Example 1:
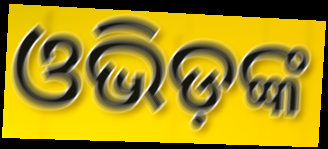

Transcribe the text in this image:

ଓଭିଡ଼ଙ୍କ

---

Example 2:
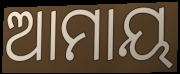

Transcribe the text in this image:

ଆମାୟ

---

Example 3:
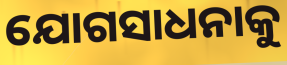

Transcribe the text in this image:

ଯୋଗସାଧନାକୁ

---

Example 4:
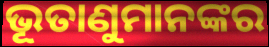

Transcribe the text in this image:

ଭୂତାଣୁମାନଙ୍କର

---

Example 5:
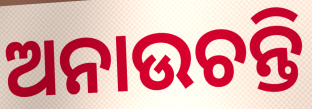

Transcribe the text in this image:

ଅନାଉଚନ୍ତି